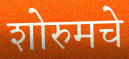
शोरुमचे